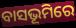
ବାସଭୂମିରେ